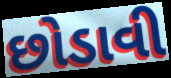
છોડાવી